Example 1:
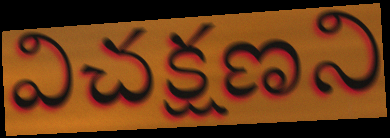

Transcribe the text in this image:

విచక్షణని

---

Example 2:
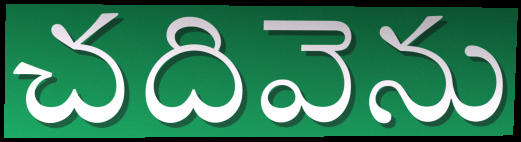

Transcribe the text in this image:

చదివెను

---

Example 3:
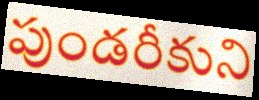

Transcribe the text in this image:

పుండరీకుని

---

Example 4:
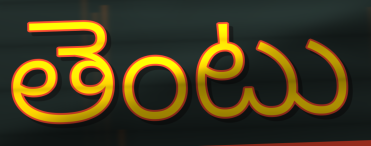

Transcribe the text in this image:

తెంటు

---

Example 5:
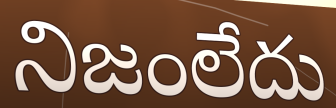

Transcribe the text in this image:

నిజంలేదు